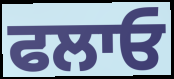
ਫਲਾਓ